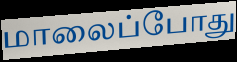
மாலைப்போது